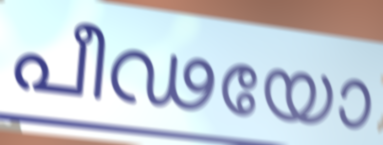
പീഢയോ